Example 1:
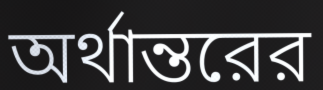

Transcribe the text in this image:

অর্থান্তরের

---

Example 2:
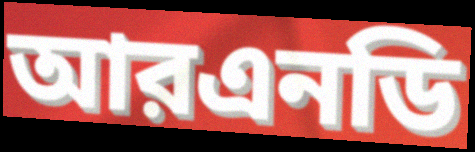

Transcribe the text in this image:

আরএনডি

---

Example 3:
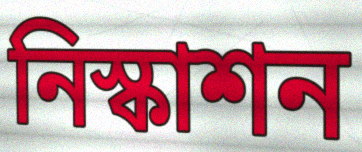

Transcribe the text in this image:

নিস্কাশন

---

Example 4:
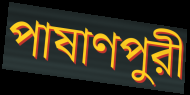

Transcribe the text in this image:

পাষাণপুরী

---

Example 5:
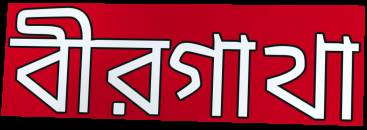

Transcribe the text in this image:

বীরগাথা